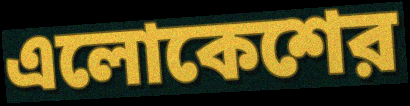
এলোকেশের